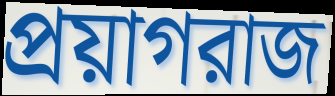
প্রয়াগরাজ